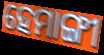
ହେମାଙ୍ଗୀ